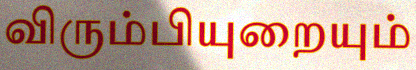
விரும்பியுறையும்